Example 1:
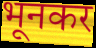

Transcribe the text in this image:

भूनकर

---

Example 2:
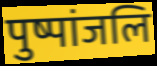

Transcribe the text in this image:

पुष्पांजलि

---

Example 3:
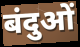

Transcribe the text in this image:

बंदुओं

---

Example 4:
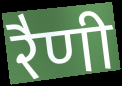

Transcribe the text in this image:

रैणी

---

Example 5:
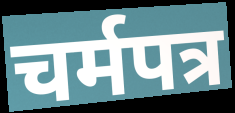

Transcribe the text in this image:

चर्मपत्र